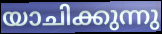
യാചിക്കുന്നു